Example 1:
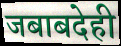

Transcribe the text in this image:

जबाबदेही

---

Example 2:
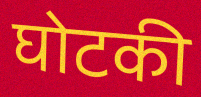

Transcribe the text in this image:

घोटकी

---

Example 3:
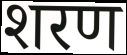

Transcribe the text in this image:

शरण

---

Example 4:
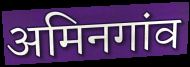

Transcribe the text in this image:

अमिनगांव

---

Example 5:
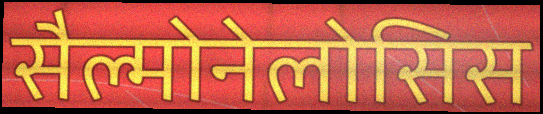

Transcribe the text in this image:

सैल्मोनेलोसिस